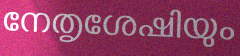
നേതൃശേഷിയും